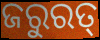
ଜରୁରତ୍